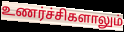
உணர்ச்சிகளாலும்